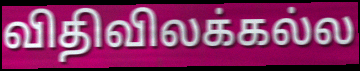
விதிவிலக்கல்ல